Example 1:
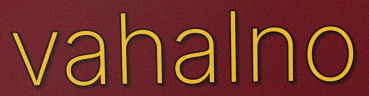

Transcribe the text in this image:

vahalno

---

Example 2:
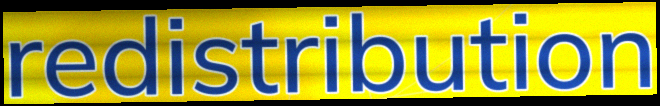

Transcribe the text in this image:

redistribution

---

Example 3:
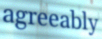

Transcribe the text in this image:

agreeably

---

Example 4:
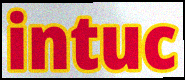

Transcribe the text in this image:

intuc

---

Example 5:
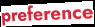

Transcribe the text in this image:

preference